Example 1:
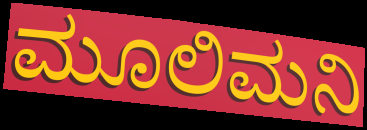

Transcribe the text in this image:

ಮೂಲಿಮನಿ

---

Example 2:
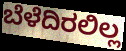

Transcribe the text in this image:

ಬೆಳೆದಿರಲಿಲ್ಲ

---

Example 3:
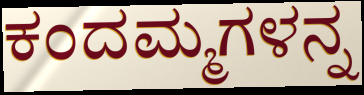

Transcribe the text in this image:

ಕಂದಮ್ಮಗಳನ್ನ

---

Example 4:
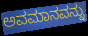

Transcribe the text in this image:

ಅವಮಾನವನ್ನು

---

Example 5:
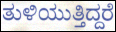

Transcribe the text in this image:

ತುಳಿಯುತ್ತಿದ್ದರೆ